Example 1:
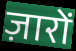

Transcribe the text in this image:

ज़ारों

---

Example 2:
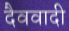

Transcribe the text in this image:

दैववादी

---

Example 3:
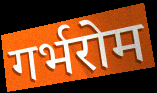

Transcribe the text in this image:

गर्भरोम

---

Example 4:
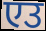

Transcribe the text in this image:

एउ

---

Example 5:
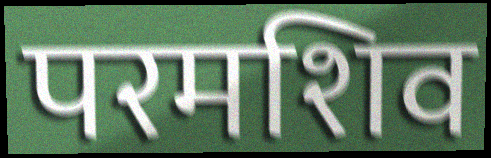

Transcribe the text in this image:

परमशिव